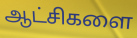
ஆட்சிகளை